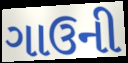
ગાઉની